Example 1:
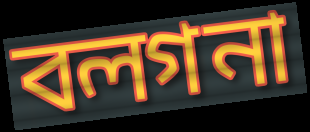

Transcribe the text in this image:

বলগনা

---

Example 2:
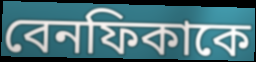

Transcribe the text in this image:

বেনফিকাকে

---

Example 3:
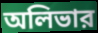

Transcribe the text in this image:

অলিভার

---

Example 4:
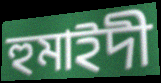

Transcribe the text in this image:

হুমাইদী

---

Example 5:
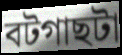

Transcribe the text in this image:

বটগাছটা